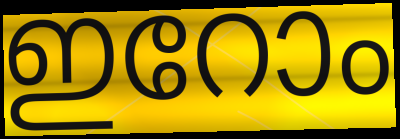
ഇറോം